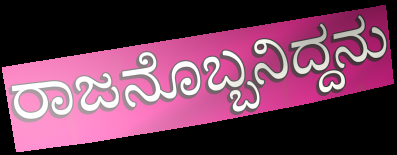
ರಾಜನೊಬ್ಬನಿದ್ದನು